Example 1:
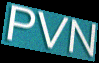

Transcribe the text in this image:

PVN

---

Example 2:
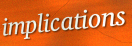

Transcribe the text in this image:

implications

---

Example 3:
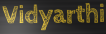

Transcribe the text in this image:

Vidyarthi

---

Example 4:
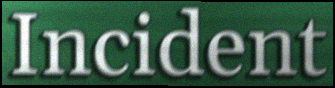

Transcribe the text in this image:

Incident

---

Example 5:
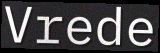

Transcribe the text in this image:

Vrede